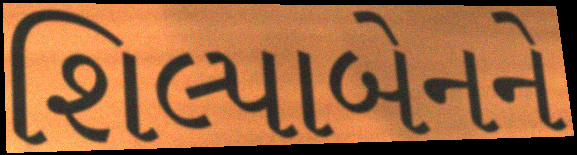
શિલ્પાબેનને